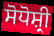
ਸੋਧੋਸ਼੍ਰੀ